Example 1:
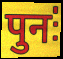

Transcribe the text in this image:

पुनः॑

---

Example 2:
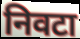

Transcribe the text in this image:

निवटा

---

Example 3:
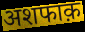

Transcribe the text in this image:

अशफाक़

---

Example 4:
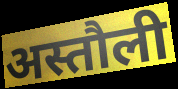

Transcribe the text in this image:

अस्तौली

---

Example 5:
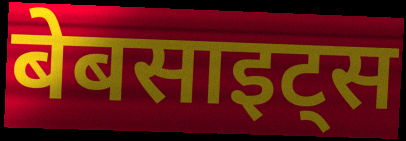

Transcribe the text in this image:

बेबसाइट्स